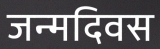
जन्मदिवस